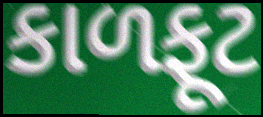
કાળફૂટ